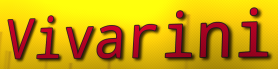
Vivarini